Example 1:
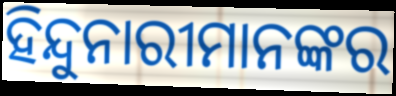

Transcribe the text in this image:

ହିନ୍ଦୁନାରୀମାନଙ୍କର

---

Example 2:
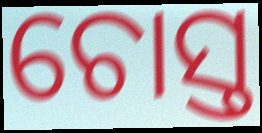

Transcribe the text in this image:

ଚୋସ୍ତ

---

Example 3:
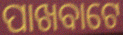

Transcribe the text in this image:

ପାଖବାଟେ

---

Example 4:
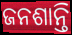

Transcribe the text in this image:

ଜନଶାନ୍ତି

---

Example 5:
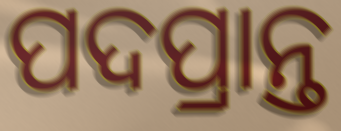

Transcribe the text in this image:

ପଦପ୍ରାନ୍ତ